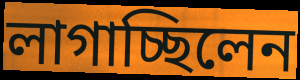
লাগাচ্ছিলেন